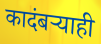
कादंबऱ्याही